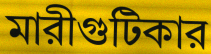
মারীগুটিকার